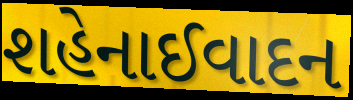
શહેનાઈવાદન